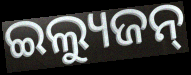
ଇଲ୍ୟୁଜନ୍